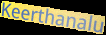
Keerthanalu